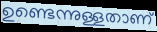
ഉണ്ടെന്നുള്ളതാണ്